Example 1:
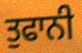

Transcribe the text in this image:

ਤੁਫਾਨੀ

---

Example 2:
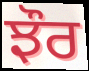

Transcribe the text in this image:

ਝੌਰ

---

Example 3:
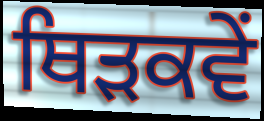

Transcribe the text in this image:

ਥਿੜਕਵੇਂ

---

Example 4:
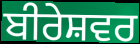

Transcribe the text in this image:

ਬੀਰੇਸ਼ਵਰ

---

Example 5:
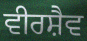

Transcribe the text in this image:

ਵੀਰਸ਼ੈਵ